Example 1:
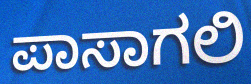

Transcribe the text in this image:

ಪಾಸಾಗಲಿ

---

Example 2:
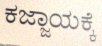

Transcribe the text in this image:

ಕಜ್ಜಾಯಕ್ಕೆ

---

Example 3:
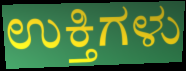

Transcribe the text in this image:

ಉಕ್ತಿಗಳು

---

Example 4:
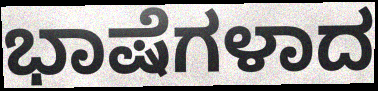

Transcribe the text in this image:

ಭಾಷೆಗಳಾದ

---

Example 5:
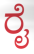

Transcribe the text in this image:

ರೈ